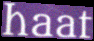
haat